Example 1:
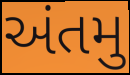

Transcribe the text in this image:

અંતમુ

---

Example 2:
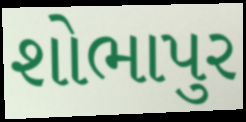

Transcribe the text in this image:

શોભાપુર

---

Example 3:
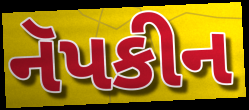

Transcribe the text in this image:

નૅપકીન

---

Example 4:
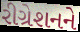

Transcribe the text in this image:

રીગ્રેશનને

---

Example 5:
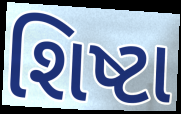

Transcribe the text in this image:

શિષ્ટા